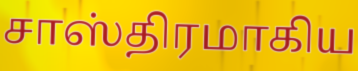
சாஸ்திரமாகிய